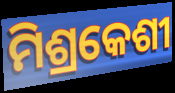
ମିଶ୍ରକେଶୀ